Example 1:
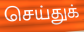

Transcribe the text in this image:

செய்துக்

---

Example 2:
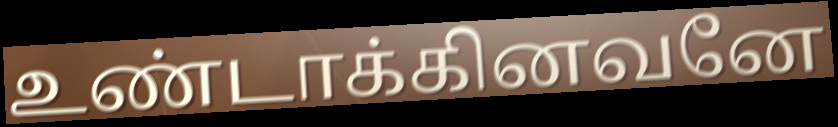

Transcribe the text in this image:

உண்டாக்கினவனே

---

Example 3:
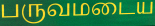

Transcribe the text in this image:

பருவமடைய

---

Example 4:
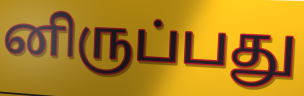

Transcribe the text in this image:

னிருப்பது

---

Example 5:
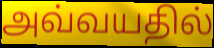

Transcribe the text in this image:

அவ்வயதில்